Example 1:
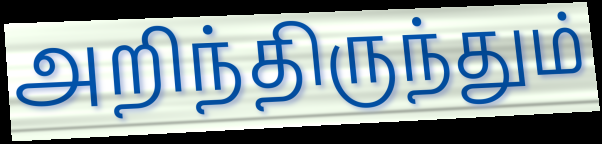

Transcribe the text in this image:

அறிந்திருந்தும்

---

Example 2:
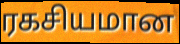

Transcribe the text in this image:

ரகசியமான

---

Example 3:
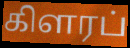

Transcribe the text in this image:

கிளரப்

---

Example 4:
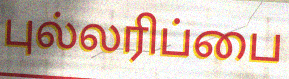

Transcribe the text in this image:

புல்லரிப்பை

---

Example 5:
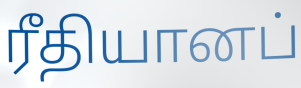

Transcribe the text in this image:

ரீதியானப்